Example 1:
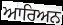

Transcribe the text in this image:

ਆਰਿਅਨ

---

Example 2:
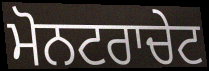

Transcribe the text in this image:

ਮੋਨਟਰਾਚੇਟ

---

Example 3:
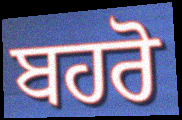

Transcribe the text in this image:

ਬਹਰੋ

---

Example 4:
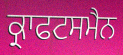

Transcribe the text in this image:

ਕ੍ਰਾਫਟਸਮੈਨ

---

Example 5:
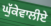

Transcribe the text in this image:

ਘੁੱਕੇਵਾਲੀਏ